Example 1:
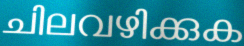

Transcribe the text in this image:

ചിലവഴിക്കുക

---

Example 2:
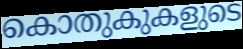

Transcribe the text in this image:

കൊതുകുകളുടെ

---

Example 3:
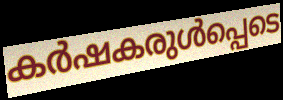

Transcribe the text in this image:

കർഷകരുൾപ്പെടെ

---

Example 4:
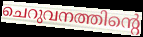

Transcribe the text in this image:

ചെറുവനത്തിന്റെ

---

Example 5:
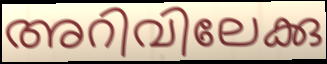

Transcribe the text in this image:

അറിവിലേക്കു